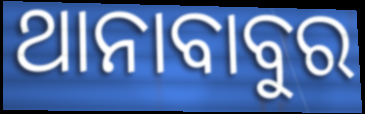
ଥାନାବାବୁର